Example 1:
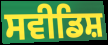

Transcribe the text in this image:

ਸਵੀਡਿਸ਼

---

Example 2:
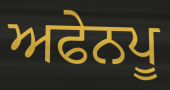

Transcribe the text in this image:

ਅਫੇਨਪੂ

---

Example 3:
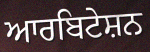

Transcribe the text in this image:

ਆਰਬਿਟੇਸ਼ਨ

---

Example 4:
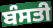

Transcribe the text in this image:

ਬੰਸਤੀ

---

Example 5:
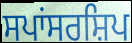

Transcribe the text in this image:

ਸਪਾਂਸਰਸ਼ਿਪ